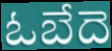
ఓబేదె